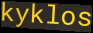
kyklos